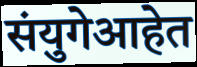
संयुगेआहेत